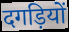
दगड़ियों